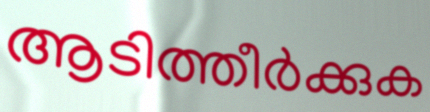
ആടിത്തീർക്കുക